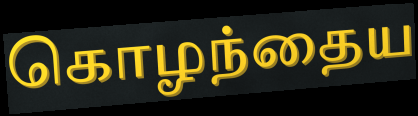
கொழந்தைய